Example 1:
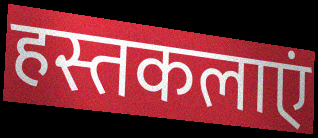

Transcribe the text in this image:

हस्तकलाएं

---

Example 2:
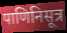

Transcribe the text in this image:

पाणिनिसूत्र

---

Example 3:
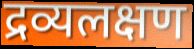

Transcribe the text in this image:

द्रव्यलक्षण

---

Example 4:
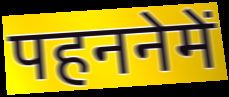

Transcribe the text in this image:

पहननेमें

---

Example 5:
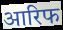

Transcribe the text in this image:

आरिफ